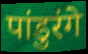
पांडुरंगे